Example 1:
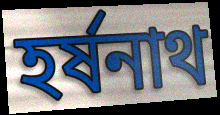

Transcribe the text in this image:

হর্ষনাথ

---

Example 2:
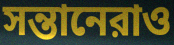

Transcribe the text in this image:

সন্তানেরাও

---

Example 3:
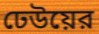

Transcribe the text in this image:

ঢেউয়ের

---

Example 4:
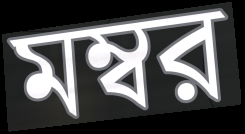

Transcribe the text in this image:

মম্বর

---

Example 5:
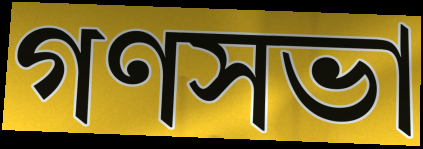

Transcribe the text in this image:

গণসভা